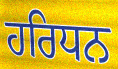
ਹਰਿਧਨ